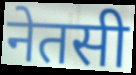
नेतसी